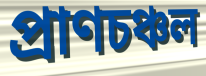
প্ৰাণচঞ্চল